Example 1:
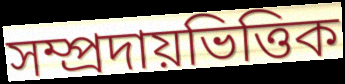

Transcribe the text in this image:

সম্প্ৰদায়ভিত্তিক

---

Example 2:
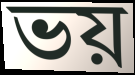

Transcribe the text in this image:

ভয়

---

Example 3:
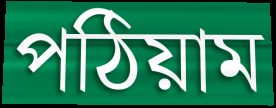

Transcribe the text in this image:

পঠিয়াম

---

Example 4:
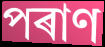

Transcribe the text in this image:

পৰাণ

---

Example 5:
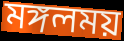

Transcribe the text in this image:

মঙ্গলময়